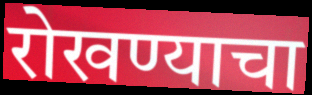
रोखण्याचा